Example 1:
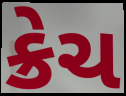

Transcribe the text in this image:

ક્રેચ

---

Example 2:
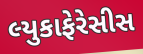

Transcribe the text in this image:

લ્યુકાફેરેસીસ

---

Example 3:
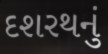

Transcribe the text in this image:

દશરથનું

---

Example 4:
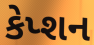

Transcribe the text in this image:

કેપ્શન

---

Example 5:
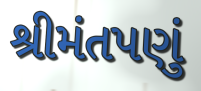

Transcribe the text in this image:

શ્રીમંતપણું